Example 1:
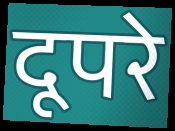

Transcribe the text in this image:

दूपरे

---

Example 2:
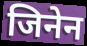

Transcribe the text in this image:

जिनेन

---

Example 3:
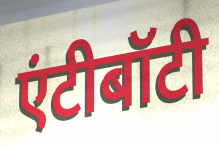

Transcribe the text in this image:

एंटीबॉटी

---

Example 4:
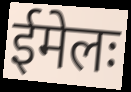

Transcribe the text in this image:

ईमेलः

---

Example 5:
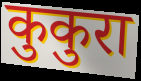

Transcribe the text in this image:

कुकुरा